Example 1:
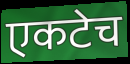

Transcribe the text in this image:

एकटेच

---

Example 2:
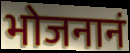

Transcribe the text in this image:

भोजनानं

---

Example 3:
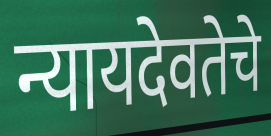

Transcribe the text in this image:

न्यायदेवतेचे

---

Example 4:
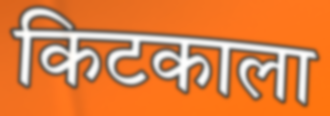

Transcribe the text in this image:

किटकाला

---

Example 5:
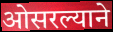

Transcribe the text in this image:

ओसरल्याने